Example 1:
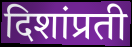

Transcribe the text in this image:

दिशांप्रती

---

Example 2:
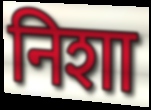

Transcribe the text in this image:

निशा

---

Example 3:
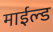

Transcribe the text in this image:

माईल्ड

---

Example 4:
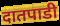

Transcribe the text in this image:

दातपाडी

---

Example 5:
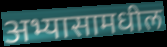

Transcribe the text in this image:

अभ्यासामधील